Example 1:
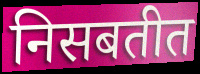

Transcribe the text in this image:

निसबतीत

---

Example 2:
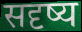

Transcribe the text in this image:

सदृष्य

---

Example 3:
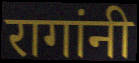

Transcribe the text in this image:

रागांनी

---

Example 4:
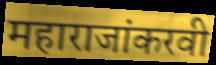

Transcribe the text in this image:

महाराजांकरवी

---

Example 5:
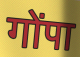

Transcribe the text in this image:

गोंपा